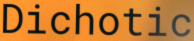
Dichotic